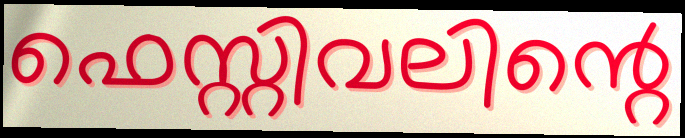
ഫെസ്റ്റിവലിന്റെ